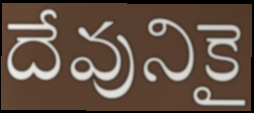
దేవునికై